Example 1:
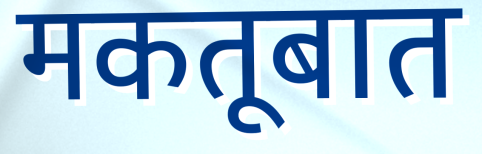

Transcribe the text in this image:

मकतूबात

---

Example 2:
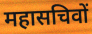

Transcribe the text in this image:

महासचिवों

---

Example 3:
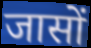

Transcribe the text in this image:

जासों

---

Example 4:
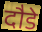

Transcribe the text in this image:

दौडे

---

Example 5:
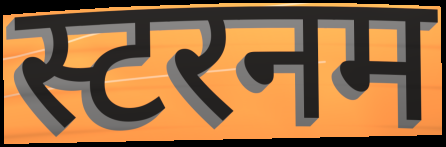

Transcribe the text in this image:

स्टरनम